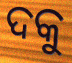
ଦକୁ